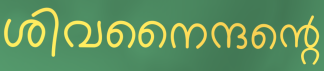
ശിവനൈന്ദന്റെ